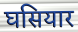
घसियार